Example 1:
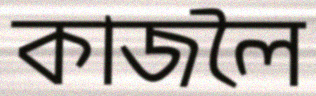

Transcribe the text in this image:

কাজলৈ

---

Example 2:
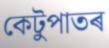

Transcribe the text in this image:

কেটুপাতৰ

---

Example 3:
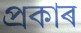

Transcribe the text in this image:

প্ৰকাৰ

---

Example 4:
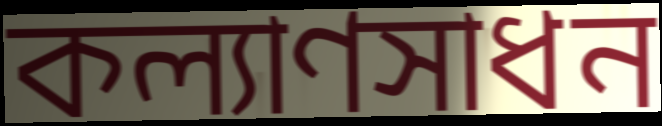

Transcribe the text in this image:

কল্যাণসাধন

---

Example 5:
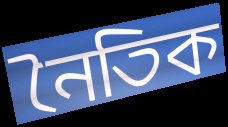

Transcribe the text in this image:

নৈতিক